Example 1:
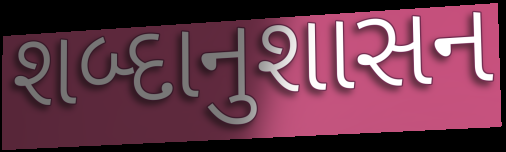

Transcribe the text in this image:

શબ્દાનુશાસન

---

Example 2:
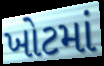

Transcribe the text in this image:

ખોટમાં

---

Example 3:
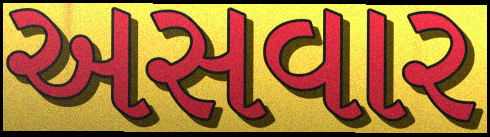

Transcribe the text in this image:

અસવાર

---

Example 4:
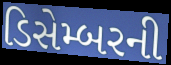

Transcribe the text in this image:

ડિસેમ્બરની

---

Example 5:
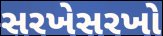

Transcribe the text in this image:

સરખેસરખો